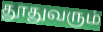
தூதுவரும்